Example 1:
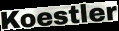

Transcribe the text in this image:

Koestler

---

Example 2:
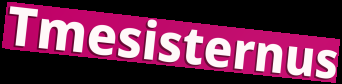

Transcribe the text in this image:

Tmesisternus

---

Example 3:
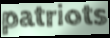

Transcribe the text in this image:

patriots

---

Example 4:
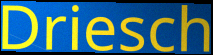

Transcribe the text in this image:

Driesch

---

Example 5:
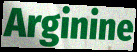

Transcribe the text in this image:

Arginine